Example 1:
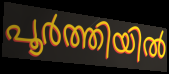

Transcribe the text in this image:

പൂർത്തിയിൽ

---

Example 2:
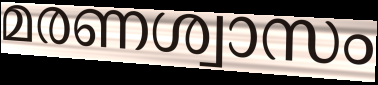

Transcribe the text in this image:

മരണശ്വാസം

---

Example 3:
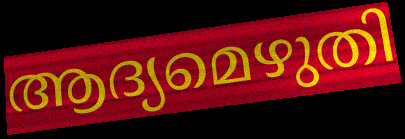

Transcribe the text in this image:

ആദ്യമെഴുതി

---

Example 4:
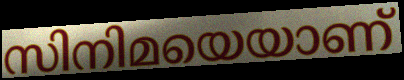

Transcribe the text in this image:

സിനിമയെയാണ്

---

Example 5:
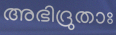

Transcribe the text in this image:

അഭിദ്രുതാഃ